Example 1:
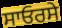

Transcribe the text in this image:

ਸਾਓਰਸੇ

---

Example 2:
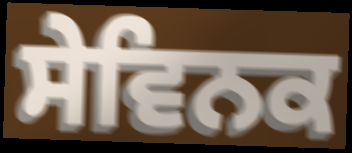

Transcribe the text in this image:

ਸੇਵਿਨਕ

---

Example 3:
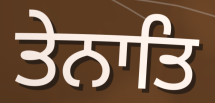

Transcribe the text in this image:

ਤੇਨਾਤਿ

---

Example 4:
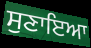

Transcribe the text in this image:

ਸੁਣਾਇਆ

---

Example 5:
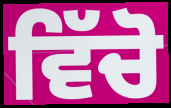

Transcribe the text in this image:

ਵਿੱਚੋ